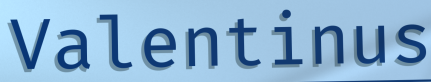
Valentinus